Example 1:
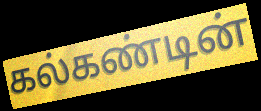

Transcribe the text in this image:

கல்கண்டின்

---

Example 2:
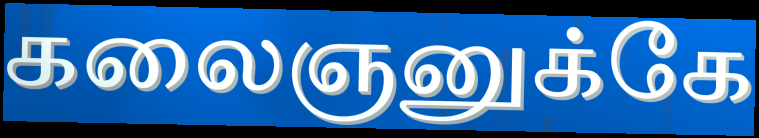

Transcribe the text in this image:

கலைஞனுக்கே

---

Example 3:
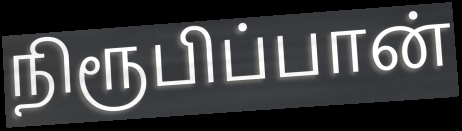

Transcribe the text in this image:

நிரூபிப்பான்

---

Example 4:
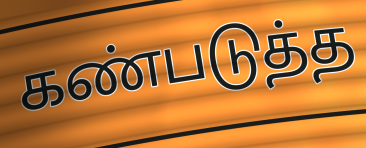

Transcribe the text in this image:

கண்படுத்த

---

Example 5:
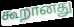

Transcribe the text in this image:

கூறானது